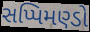
સપ્પિમણ્ડો